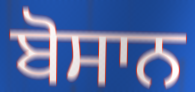
ਬੋਸਾਨ